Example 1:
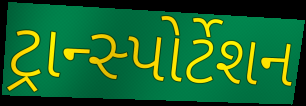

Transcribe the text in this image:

ટ્રાન્સ્પોર્ટેશન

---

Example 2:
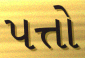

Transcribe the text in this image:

પત્તો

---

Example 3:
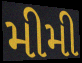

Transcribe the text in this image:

મીમી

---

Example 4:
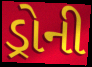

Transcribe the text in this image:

ડ્રોની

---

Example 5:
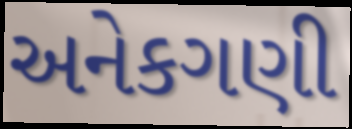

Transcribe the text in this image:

અનેકગણી